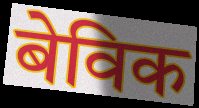
बेविक